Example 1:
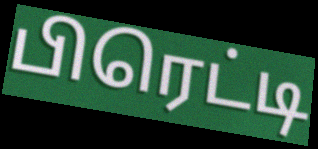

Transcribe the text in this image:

பிரெட்டி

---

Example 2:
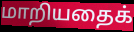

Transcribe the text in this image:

மாறியதைக்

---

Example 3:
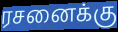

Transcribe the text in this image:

ரசனைக்கு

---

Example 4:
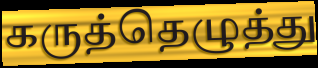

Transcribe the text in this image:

கருத்தெழுத்து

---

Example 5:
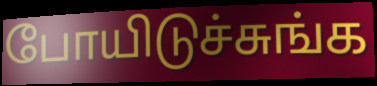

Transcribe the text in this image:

போயிடுச்சுங்க